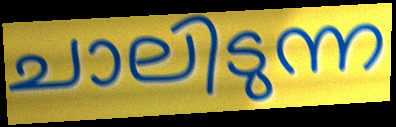
ചാലിടുന്ന